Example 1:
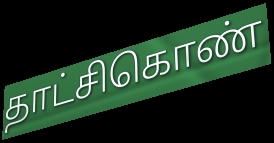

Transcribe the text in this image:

தாட்சிகொண்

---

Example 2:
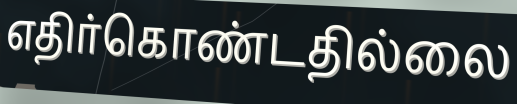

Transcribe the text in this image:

எதிர்கொண்டதில்லை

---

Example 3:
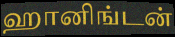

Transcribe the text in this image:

ஹானிங்டன்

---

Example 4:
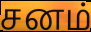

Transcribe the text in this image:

சனம்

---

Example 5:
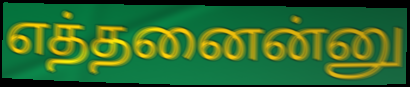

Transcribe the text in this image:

எத்தனைன்னு